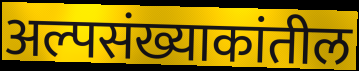
अल्पसंख्याकांतील